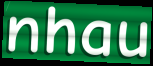
nhau